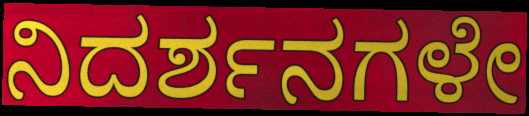
ನಿದರ್ಶನಗಳೇ